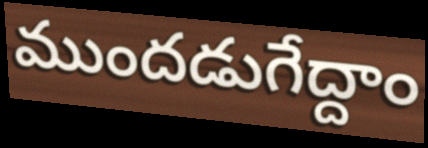
ముందడుగేద్దాం